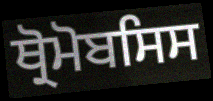
ਥ੍ਰੋਮੋਬਸਿਸ